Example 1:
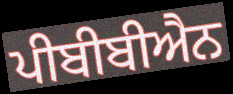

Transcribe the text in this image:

ਪੀਬੀਬੀਐਨ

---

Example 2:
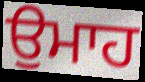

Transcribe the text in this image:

ਉਮਾਹ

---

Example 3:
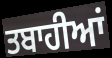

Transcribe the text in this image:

ਤਬਾਹੀਆਂ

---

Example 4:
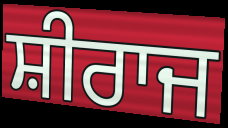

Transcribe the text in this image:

ਸ਼ੀਰਾਜ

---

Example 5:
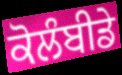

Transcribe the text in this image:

ਕੋਲੰਬੀਡੇ